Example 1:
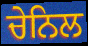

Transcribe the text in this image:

ਚੇਨਿਲ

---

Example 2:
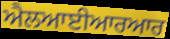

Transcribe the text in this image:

ਐਲਆਈਆਰਆਰ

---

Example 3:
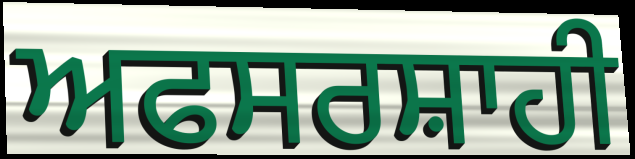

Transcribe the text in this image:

ਅਫਸਰਸ਼ਾਹੀ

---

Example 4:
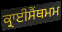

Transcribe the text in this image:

ਕ੍ਰਾਈਸੈਂਥਮਮ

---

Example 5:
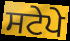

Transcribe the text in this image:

ਸਟੇਪੇ